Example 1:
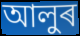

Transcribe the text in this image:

আলুৰ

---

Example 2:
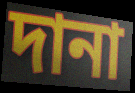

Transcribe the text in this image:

দানা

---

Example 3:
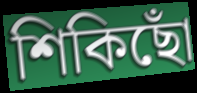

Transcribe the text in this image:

শিকিছোঁ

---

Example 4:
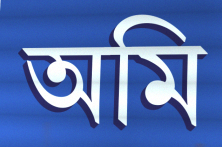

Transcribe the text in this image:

অমি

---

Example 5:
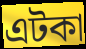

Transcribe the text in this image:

এটকা